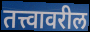
तत्त्वावरील